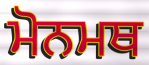
ਮੋਨਮਥ